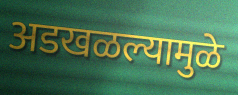
अडखळल्यामुळे